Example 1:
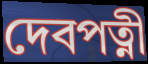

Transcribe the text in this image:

দেবপত্নী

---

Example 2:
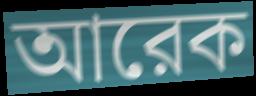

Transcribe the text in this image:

আরেক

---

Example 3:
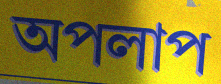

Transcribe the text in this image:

অপলাপ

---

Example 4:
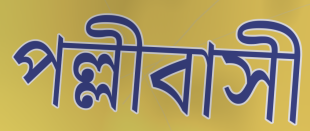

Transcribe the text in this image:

পল্লীবাসী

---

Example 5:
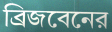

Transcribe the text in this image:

ব্রিজবেনের